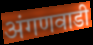
अंगणवाडी